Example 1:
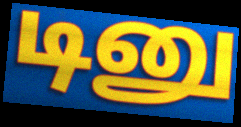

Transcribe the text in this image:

டினு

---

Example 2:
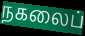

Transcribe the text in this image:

நகலைப்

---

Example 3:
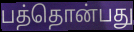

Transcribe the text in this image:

பத்தொன்பது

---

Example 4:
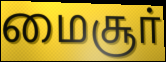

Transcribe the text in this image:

மைசூர்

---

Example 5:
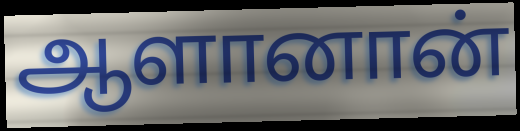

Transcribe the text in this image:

ஆளானான்